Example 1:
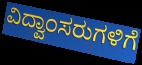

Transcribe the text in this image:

ವಿದ್ವಾಂಸರುಗಳಿಗೆ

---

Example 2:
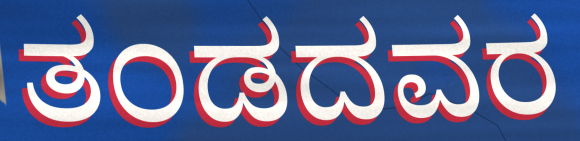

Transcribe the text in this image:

ತಂಡದವರ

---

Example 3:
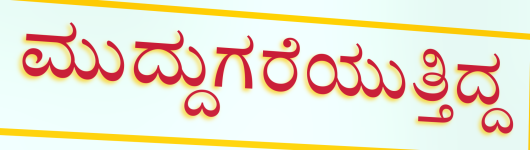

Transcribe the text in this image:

ಮುದ್ದುಗರೆಯುತ್ತಿದ್ದ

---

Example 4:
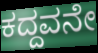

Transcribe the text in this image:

ಕದ್ದವನೇ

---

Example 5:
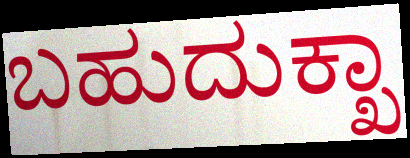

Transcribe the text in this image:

ಬಹುದುಕ್ಖಾ